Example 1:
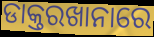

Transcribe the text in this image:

ଡାକ୍ତରଖାନାରେ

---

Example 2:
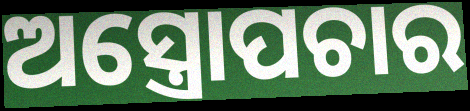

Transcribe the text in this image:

ଅସ୍ତ୍ରୋପଚାର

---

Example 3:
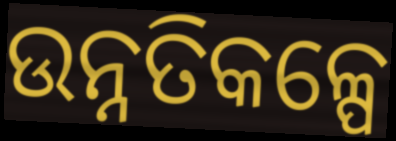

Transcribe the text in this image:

ଉନ୍ନତିକଳ୍ପେ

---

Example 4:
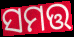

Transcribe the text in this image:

ସମତ୍ତ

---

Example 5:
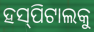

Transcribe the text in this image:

ହସ୍‌ପିଟାଲକୁ